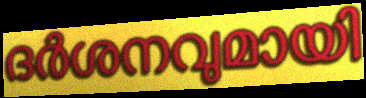
ദർശനവുമായി